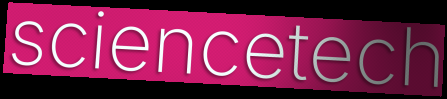
sciencetech